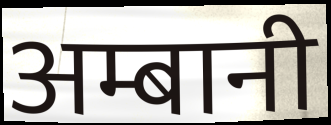
अम्‍बानी